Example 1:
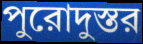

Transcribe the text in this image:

পুরোদুস্তর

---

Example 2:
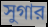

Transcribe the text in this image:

সুগার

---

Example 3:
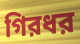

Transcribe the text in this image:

গিরধর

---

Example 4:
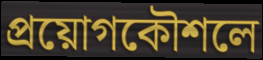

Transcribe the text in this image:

প্রয়োগকৌশলে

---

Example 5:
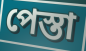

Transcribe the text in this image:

পেস্তা